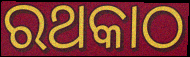
ରଥକାଠ